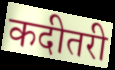
कदीतरी